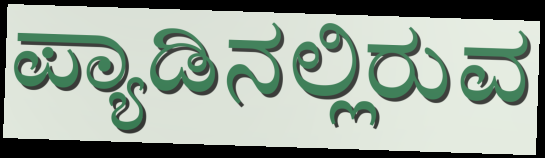
ಪ್ಯಾಡಿನಲ್ಲಿರುವ